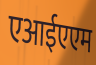
एआईएएम